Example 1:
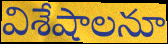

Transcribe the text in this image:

విశేషాలనూ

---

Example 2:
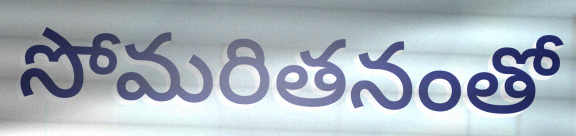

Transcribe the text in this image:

సోమరితనంతో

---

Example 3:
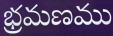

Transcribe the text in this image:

భ్రమణము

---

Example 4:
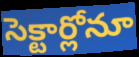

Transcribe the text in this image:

సెక్టార్లోనూ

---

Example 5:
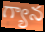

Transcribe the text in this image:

గ్యాన